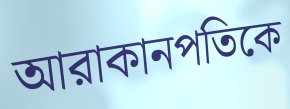
আরাকানপতিকে